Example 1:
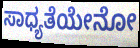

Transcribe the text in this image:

ಸಾಧ್ಯತೆಯೇನೋ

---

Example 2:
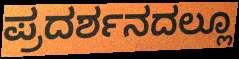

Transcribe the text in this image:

ಪ್ರದರ್ಶನದಲ್ಲೂ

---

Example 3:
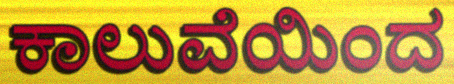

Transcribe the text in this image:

ಕಾಲುವೆಯಿಂದ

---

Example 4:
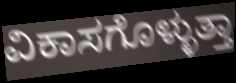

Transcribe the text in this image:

ವಿಕಾಸಗೊಳ್ಳುತ್ತಾ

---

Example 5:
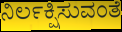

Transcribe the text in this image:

ನಿರ್ಲಕ್ಷಿಸುವಂತೆ